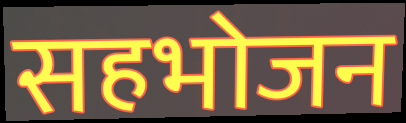
सहभोजन